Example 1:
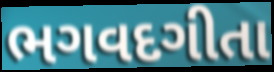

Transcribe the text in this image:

ભગવદગીતા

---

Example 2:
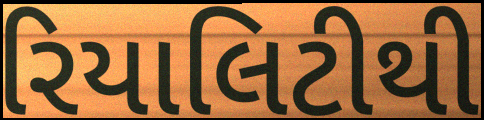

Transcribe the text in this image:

રિયાલિટીથી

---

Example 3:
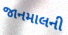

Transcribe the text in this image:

જાનમાલની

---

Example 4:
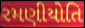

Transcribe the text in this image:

રમણીયોતિ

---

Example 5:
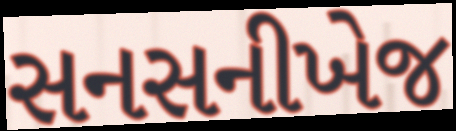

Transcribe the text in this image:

સનસનીખેજ